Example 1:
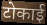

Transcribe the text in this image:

टोकाई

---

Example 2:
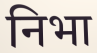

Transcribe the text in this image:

निभा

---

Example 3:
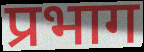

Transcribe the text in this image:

प्रभाग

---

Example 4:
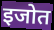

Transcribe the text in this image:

इजोत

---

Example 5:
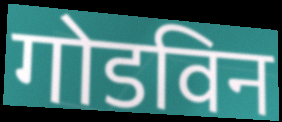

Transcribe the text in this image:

गोडविन